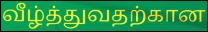
வீழ்த்துவதற்கான